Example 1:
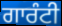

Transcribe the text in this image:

ਗਾਰੰਟੀ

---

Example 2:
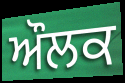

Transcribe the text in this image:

ਔਲਕ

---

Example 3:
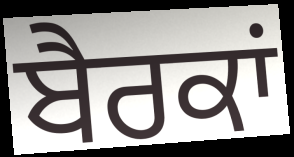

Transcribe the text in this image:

ਬੈਰਕਾਂ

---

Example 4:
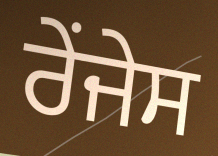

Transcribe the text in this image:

ਰੇਂਜੇਸ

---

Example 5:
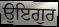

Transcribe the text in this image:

ਉਇਗੁਰ